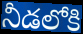
నీడలోకి